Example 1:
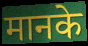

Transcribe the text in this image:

मानके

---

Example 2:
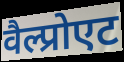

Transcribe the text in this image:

वैल्प्रोएट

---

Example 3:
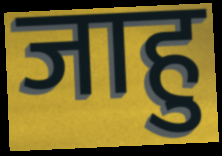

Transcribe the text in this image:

जाहु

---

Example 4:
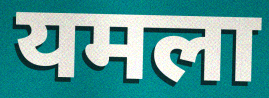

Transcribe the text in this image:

यमला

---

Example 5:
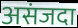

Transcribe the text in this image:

असंजदा